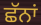
ਛੱਨਾਂ